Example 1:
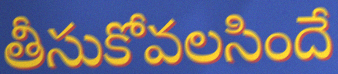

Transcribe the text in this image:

తీసుకోవలసిందే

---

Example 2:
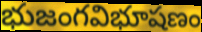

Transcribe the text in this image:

భుజంగవిభూషణం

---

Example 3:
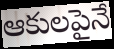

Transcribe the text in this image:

ఆకులపైనే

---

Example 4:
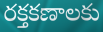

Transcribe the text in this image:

రక్తకణాలకు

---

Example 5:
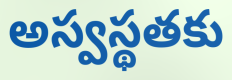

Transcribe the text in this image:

అస్వస్థతకు